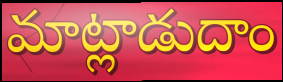
మాట్లాడుదాం